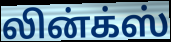
லின்க்ஸ்